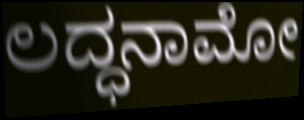
ಲದ್ಧನಾಮೋ